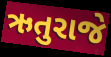
ઋતુરાજે